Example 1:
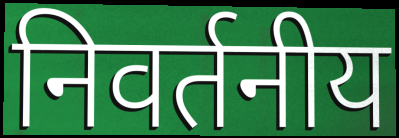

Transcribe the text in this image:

निवर्तनीय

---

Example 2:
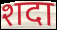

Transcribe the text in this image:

शदा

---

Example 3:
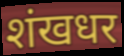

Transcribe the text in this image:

शंखधर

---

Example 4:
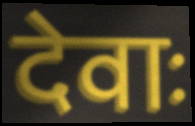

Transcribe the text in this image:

देवाः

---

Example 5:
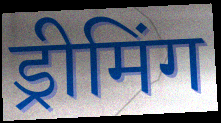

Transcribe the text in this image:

ड्रीमिंग